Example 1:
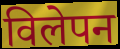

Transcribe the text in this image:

विलेपन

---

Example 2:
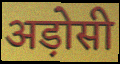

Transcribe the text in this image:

अड़ोसी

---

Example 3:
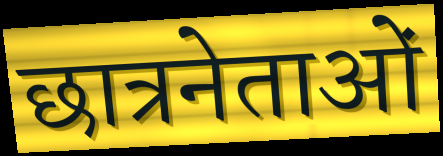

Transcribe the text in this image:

छात्रनेताओं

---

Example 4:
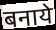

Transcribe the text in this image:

बनाये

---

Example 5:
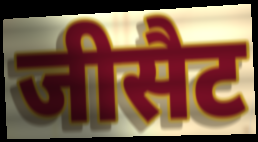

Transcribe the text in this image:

जीसैट